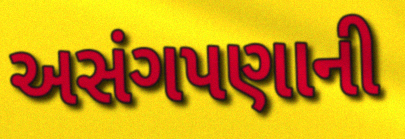
અસંગપણાની